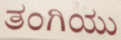
ತಂಗಿಯು